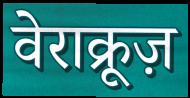
वेराक्रूज़